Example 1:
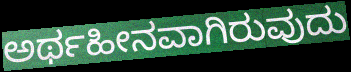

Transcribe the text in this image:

ಅರ್ಥಹೀನವಾಗಿರುವುದು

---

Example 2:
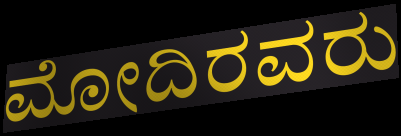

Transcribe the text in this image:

ಮೋದಿರವರು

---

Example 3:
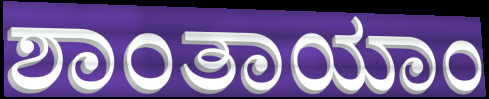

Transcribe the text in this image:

ಶಾಂತಾಯಾಂ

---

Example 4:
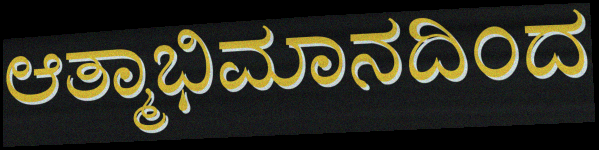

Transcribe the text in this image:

ಆತ್ಮಾಭಿಮಾನದಿಂದ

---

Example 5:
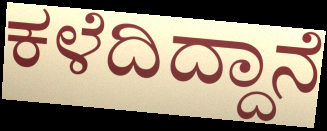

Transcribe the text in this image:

ಕಳೆದಿದ್ದಾನೆ